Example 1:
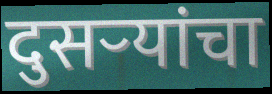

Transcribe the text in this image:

दुसऱ्यांचा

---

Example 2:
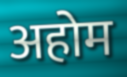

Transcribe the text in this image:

अहोम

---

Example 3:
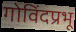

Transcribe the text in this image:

गोविंदप्रभू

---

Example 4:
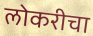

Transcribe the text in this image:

लोकरीचा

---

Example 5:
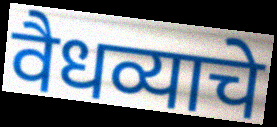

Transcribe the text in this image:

वैधव्याचे